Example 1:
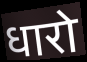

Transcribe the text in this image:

धारो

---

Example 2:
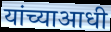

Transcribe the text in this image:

यांच्याआधी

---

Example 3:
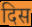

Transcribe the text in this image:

दिस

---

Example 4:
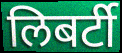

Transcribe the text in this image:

लिबर्टी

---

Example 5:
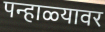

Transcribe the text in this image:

पन्हाळ्यावर